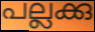
പല്ലക്കു